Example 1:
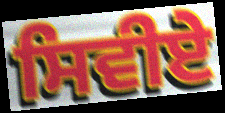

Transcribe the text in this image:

ਸਿਵੀਏ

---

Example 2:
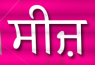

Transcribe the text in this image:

ਸੀਜ਼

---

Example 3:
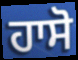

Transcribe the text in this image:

ਹਾਸੋ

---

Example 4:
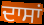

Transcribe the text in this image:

ਦਾਸਾਂ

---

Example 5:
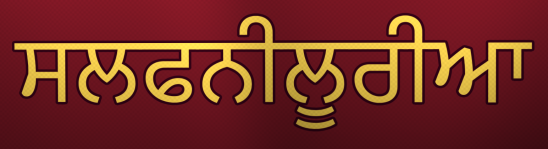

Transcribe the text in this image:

ਸਲਫਨੀਲੂਰੀਆ